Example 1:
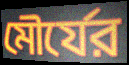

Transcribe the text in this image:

মৌর্যের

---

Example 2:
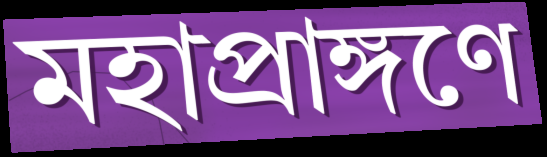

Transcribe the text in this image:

মহাপ্রাঙ্গণে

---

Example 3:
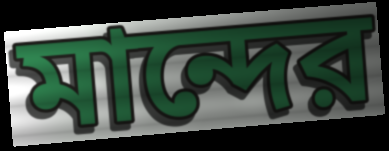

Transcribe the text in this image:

মান্দের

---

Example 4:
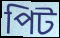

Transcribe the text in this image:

পিট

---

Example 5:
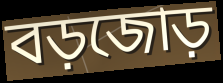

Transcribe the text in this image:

বড়জোড়